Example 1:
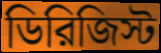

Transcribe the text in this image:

ডিরিজিস্ট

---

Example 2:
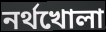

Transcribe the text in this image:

নর্থখোলা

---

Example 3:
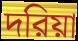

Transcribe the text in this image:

দরিয়া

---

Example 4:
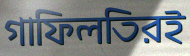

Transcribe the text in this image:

গাফিলতিরই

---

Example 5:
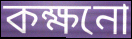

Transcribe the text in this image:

কক্ষনো